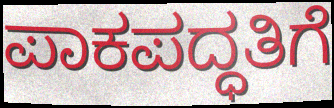
ಪಾಕಪದ್ಧತಿಗೆ